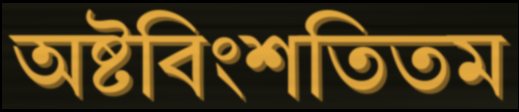
অষ্টবিংশতিতম